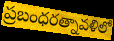
ప్రబంధరత్నావళిలో